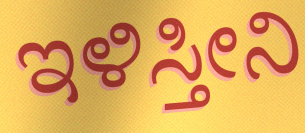
ಇಳಿಸ್ತೀನಿ